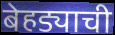
बेहड्याची